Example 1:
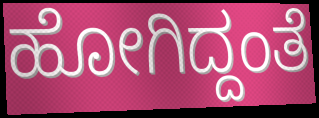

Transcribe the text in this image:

ಹೋಗಿದ್ದಂತೆ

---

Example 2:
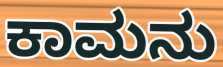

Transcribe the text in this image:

ಕಾಮನು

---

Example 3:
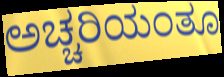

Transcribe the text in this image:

ಅಚ್ಚರಿಯಂತೂ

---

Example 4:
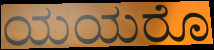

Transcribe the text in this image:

ಯಯರೊ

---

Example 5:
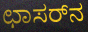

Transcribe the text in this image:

ಛಾಸರ್‌ನ